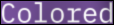
Colored